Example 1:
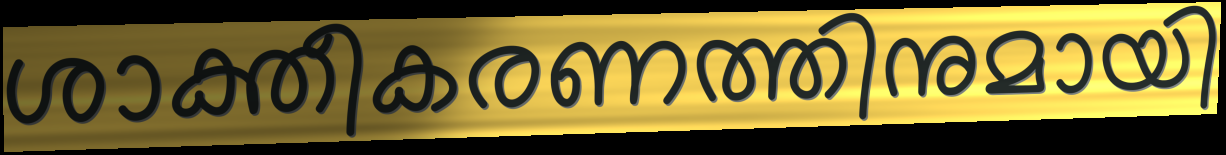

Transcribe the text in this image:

ശാക്തീകരണത്തിനുമായി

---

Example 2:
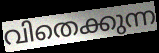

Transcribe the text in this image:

വിതെക്കുന്ന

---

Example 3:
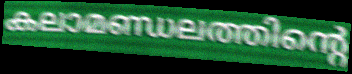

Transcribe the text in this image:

കലാമണ്ഡലത്തിന്റെ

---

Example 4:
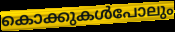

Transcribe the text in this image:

കൊക്കുകൾപോലും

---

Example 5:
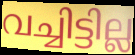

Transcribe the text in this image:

വച്ചിട്ടില്ല